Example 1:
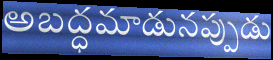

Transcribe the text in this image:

అబద్ధమాడునప్పుడు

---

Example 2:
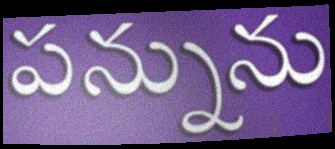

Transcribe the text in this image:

పన్నును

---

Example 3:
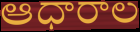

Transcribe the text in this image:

ఆధారాల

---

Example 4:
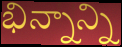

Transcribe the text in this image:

భిన్నాన్ని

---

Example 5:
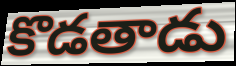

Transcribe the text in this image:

కొడతాడు